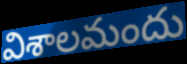
విశాలమందు